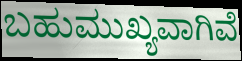
ಬಹುಮುಖ್ಯವಾಗಿವೆ